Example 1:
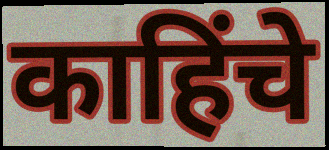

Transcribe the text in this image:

काहिंचे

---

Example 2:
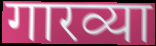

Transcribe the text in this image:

गारव्या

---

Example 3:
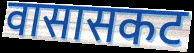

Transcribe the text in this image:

वासासकट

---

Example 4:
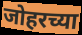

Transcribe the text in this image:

जोहरच्या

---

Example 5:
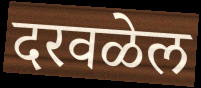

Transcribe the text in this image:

दरवळेल